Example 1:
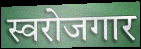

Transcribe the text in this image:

स्वरोजगार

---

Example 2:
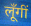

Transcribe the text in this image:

लूँगीं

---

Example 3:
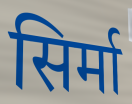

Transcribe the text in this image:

सिर्मा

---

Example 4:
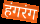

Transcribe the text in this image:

हंगरंग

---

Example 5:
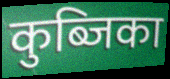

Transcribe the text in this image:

कुब्जिका